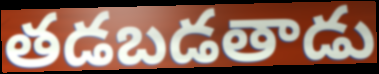
తడబడతాడు